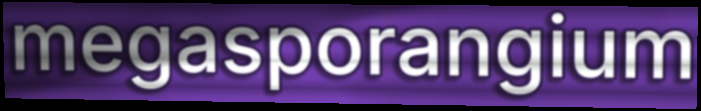
megasporangium